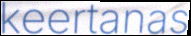
keertanas